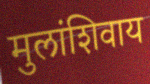
मुलांशिवाय